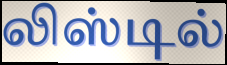
லிஸ்டில்